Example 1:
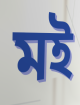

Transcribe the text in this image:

মই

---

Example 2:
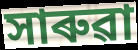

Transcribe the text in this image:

সাৰুৱা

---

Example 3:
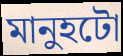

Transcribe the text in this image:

মানুহটো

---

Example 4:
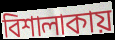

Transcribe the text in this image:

বিশালাকায়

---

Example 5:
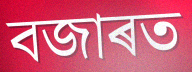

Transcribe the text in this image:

বজাৰত